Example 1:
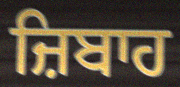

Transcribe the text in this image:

ਜ਼ਿਬਾਹ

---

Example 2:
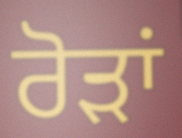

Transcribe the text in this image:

ਰੋੜਾਂ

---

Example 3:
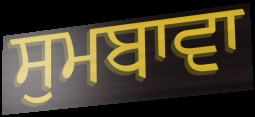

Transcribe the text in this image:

ਸੁਮਬਾਵਾ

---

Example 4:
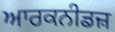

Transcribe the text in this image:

ਆਰਕਨੀਡਜ਼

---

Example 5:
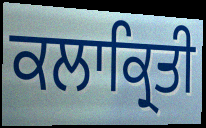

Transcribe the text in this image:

ਕਲਾਕ੍ਰਿਤੀ